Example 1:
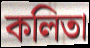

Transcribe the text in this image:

কলিতা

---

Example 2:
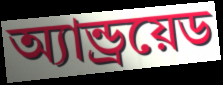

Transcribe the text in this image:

অ্যান্ড্রয়েড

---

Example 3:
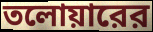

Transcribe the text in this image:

তলোয়ারের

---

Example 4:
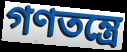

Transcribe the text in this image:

গণতন্ত্রে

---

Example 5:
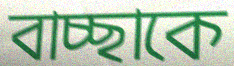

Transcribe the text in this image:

বাচ্ছাকে